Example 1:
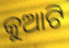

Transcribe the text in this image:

କୁଆଟି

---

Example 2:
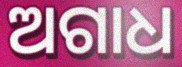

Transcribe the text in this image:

ଅଗାଧ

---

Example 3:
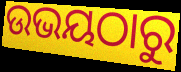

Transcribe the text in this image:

ଉଭୟଠାରୁ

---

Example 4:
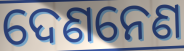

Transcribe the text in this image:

ଦେଣନେଣ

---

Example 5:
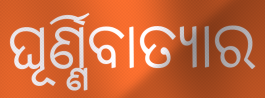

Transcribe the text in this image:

ଘୂର୍ଣ୍ଣିବାତ୍ୟାର